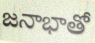
జనాభాతో